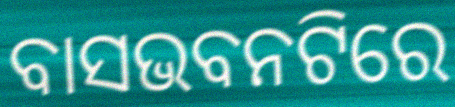
ବାସଭବନଟିରେ